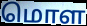
மொள